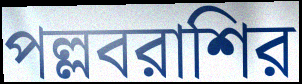
পল্লবরাশির